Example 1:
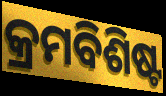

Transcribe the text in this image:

କ୍ରମବିଶିଷ୍ଟ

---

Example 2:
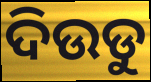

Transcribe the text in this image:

ଦିଉଡୁ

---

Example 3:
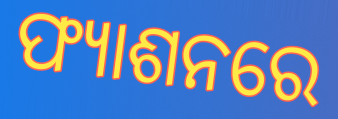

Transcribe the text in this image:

ଫ୍ୟାଶନରେ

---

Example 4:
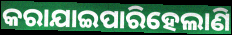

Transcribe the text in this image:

କରାଯାଇପାରିହେଲାଣି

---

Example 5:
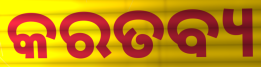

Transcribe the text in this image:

କରତବ୍ୟ